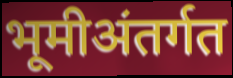
भूमीअंतर्गत